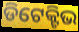
ଡିଟେକ୍ଟିଭ